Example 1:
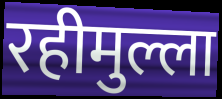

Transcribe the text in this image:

रहीमुल्ला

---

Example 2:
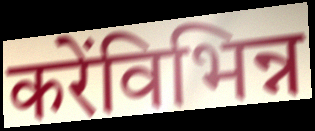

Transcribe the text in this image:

करेंविभिन्न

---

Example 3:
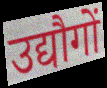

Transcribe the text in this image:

उद्यौगों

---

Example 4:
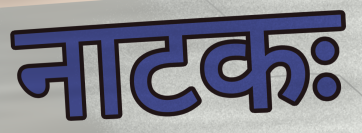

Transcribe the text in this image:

नाटकः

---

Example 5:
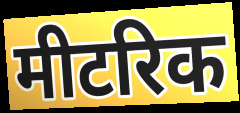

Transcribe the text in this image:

मीटरिक